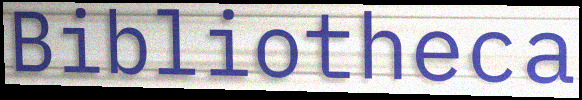
Bibliotheca